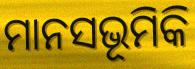
ମାନସଭୂମିକି